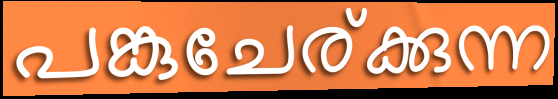
പങ്കുചേര്ക്കുന്ന